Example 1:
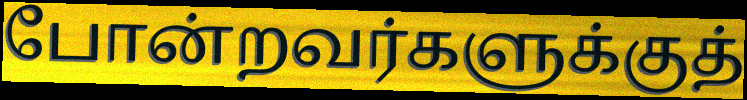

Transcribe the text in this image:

போன்றவர்களுக்குத்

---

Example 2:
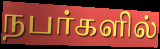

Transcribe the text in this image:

நபர்களில்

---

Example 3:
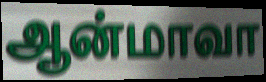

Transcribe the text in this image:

ஆன்மாவா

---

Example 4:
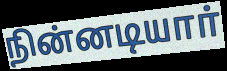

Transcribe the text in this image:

நின்னடியார்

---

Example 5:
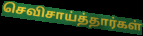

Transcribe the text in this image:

செவிசாய்த்தார்கள்